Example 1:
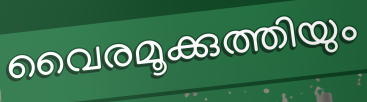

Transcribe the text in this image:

വൈരമൂക്കുത്തിയും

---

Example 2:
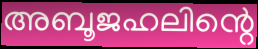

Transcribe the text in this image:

അബൂജഹലിന്റെ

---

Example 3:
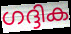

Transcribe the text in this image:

ഗദ്ദിക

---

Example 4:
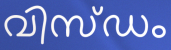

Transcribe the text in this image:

വിസ്ഡം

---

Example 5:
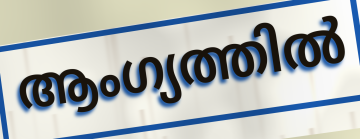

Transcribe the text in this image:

ആംഗ്യത്തിൽ